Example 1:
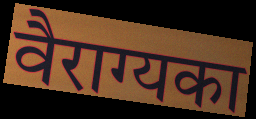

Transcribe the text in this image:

वैराग्यका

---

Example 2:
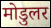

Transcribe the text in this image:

मोडुलर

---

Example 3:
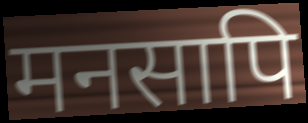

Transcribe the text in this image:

मनसापि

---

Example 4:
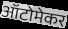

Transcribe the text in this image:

ऑटोमेकर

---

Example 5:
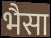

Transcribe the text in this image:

भैसा